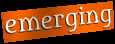
emerging